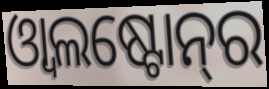
ଓ୍ୱାଲଷ୍ଟୋନ୍‌ର